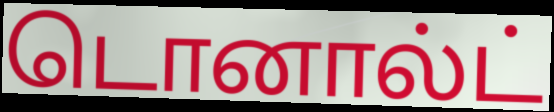
டொனால்ட்